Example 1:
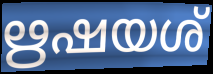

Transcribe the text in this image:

ഋഷയശ്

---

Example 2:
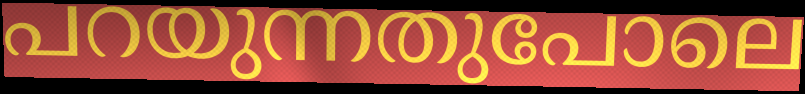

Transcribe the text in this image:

പറയുന്നതുപോലെ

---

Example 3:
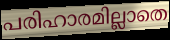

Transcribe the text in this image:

പരിഹാരമില്ലാതെ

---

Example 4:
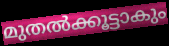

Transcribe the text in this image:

മുതൽക്കൂട്ടാകും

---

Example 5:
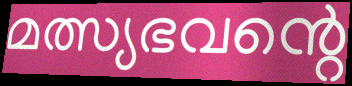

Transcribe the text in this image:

മത്സ്യഭവന്റെ